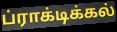
ப்ராக்டிக்கல்